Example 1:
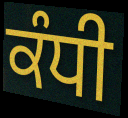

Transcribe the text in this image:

ਕੰਧੀ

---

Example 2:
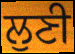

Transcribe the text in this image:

ਲੁਣੀ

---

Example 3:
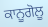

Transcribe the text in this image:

ਕਾਨੂਗੋਲੂ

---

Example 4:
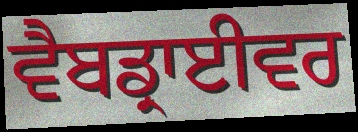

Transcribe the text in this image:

ਵੈਬਡ੍ਰਾਈਵਰ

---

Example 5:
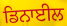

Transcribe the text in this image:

ਡਿਨਾਈਲ